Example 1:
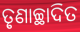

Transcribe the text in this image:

ତୃଣାଚ୍ଛାଦିତ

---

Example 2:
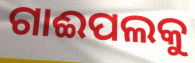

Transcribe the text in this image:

ଗାଈପଲକୁ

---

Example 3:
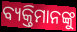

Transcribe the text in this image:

ବ୍ୟକ୍ତିମାନଙ୍କୁ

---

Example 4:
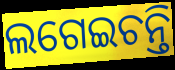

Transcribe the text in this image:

ଲଗେଇଚନ୍ତି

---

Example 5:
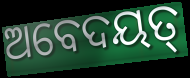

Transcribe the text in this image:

ଅବେଦୟତ୍